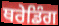
ਥਰੇਡਿੰਗ